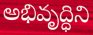
అభివృద్ధిని